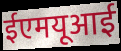
ईएमयूआई